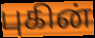
புகின்